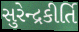
સુરેન્દ્રકીર્તિ